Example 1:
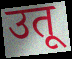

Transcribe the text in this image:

उतू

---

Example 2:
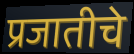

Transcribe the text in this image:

प्रजातीचे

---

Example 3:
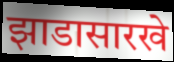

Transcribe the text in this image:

झाडासारखे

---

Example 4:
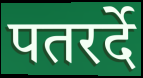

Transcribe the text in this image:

पतरर्दे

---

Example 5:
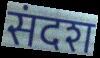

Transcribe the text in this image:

संदश